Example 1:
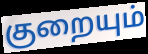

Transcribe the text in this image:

குறையும்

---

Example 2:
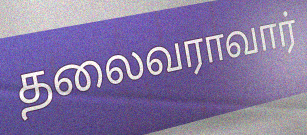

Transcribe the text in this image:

தலைவராவார்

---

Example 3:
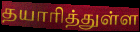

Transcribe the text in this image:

தயாரித்துள்ள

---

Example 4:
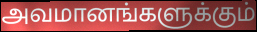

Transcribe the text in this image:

அவமானங்களுக்கும்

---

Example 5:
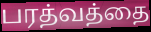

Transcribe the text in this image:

பரத்வத்தை